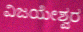
ವಿಜಯೇಶ್ವರ